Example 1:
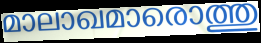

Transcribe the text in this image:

മാലാഖമാരൊത്തു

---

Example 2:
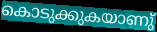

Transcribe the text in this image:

കൊടുക്കുകയാണു്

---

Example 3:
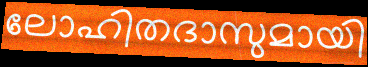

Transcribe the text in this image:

ലോഹിതദാസുമായി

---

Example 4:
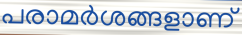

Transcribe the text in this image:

പരാമർശങ്ങളാണ്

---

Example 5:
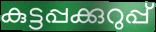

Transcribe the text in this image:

കുട്ടപ്പക്കുറുപ്പ്